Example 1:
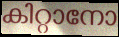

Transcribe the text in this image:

കിറ്റാനോ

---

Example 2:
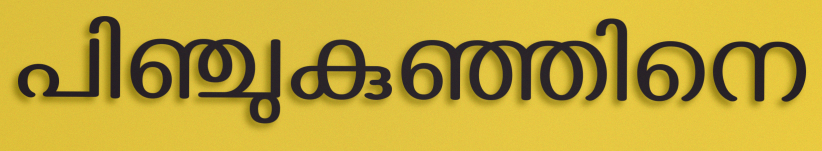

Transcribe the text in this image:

പിഞ്ചുകുഞ്ഞിനെ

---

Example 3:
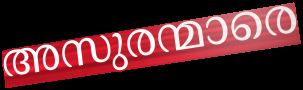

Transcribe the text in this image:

അസുരന്മാരെ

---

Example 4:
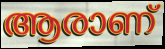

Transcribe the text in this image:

ആരാണ്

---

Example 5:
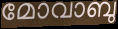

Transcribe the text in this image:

മോവാബു